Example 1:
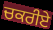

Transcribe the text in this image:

ਚਕਰੀਏ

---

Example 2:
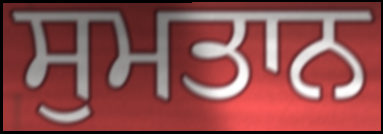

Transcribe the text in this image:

ਸੁਮਤਾਨ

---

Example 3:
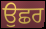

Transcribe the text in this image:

ਉਛਰ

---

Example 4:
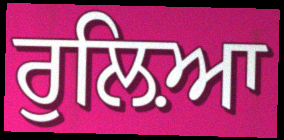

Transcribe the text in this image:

ਰੁਲ਼ਿਆ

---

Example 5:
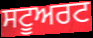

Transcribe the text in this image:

ਸਟੂਅਰਟ